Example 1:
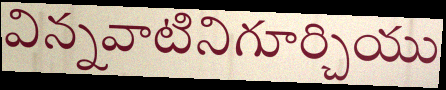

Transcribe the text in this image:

విన్నవాటినిగూర్చియు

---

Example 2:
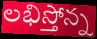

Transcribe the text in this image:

లభిస్తోన్న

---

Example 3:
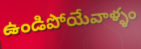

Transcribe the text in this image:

ఉండిపోయేవాళ్ళం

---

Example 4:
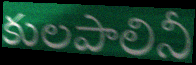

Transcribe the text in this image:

కులపాలినీ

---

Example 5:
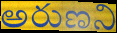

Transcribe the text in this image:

అరుణని